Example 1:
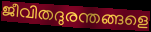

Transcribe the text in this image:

ജീവിതദുരന്തങ്ങളെ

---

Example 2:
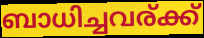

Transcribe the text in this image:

ബാധിച്ചവര്ക്ക്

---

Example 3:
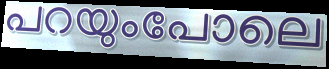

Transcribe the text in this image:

പറയുംപോലെ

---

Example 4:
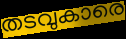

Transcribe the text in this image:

തടവുകാരെ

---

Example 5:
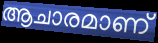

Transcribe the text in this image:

ആചാരമാണ്